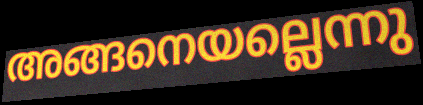
അങ്ങനെയല്ലെന്നു